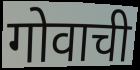
गोवाची